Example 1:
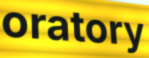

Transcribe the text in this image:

oratory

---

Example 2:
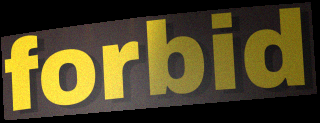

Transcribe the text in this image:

forbid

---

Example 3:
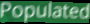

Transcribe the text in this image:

Populated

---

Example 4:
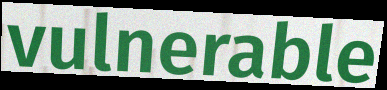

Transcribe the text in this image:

vulnerable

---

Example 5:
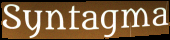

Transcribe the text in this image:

Syntagma